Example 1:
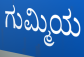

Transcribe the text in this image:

ಗುಮ್ಮಿಯ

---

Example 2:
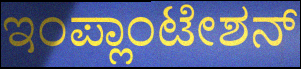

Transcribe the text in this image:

ಇಂಪ್ಲಾಂಟೇಶನ್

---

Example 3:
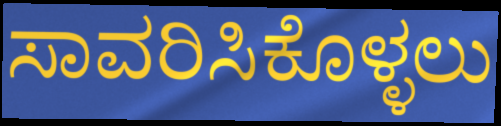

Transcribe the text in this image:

ಸಾವರಿಸಿಕೊಳ್ಳಲು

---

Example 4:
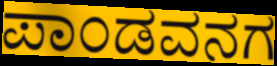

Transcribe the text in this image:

ಪಾಂಡವನಗ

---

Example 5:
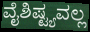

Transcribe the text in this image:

ವೈಶಿಷ್ಟ್ಯವಲ್ಲ